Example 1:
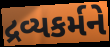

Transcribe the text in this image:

દ્રવ્યકર્મને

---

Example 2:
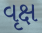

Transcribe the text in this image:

વૃક્ષ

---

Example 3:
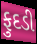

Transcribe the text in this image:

ફુદડી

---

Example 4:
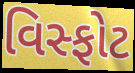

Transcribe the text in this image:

વિસ્ફોટ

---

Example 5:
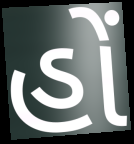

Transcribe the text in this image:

હોં